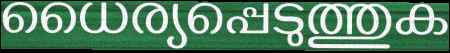
ധൈര്യപ്പെടുത്തുക